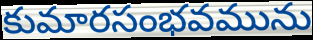
కుమారసంభవమును